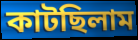
কাটছিলাম